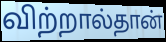
விற்றால்தான்